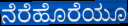
ನೆರೆಹೊರೆಯೂ